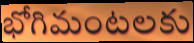
భోగిమంటలకు